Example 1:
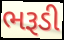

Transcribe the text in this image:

ભરૂડી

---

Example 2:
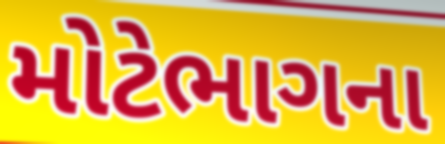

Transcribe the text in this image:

મોટેભાગના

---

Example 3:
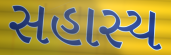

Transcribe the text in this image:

સહાસ્ય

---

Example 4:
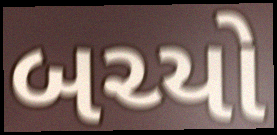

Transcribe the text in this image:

બચ્યો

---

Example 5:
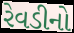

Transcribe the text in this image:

રેવડીનો